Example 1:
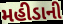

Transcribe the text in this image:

મહીડાની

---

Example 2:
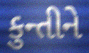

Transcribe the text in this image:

કુન્તીને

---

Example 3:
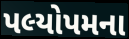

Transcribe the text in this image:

પલ્યોપમના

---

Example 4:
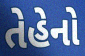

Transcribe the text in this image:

તેહેનો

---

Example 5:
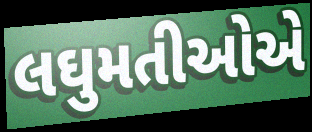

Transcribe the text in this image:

લઘુમતીઓએ